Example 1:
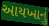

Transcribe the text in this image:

આયખાનું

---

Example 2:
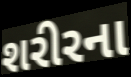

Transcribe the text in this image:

શરીરના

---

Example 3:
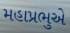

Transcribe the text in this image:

મહાપ્રભુએ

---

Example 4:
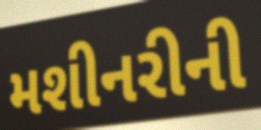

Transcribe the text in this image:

મશીનરીની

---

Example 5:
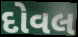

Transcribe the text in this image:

દોવલ